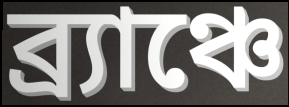
ব্র্যাঞ্চে